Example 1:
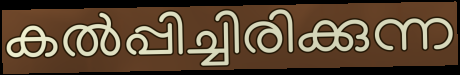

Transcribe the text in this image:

കൽപ്പിച്ചിരിക്കുന്ന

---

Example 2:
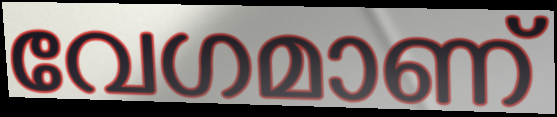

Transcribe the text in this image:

വേഗമാണ്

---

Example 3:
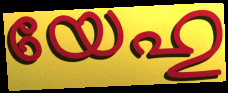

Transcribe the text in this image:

യേഹു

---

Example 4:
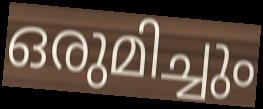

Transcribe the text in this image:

ഒരുമിച്ചും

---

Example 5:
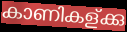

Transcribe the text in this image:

കാണികള്ക്കു